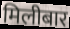
मिलीबार